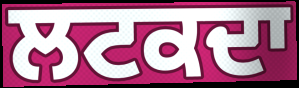
ਲਟਕਦਾ